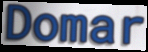
Domar